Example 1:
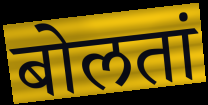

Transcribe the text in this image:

बोलतां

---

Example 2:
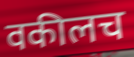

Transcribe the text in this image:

वकीलच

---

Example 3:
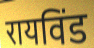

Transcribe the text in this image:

रायविंड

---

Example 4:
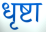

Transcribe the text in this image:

धृष्टा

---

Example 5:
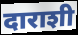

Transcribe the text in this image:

दाराशी